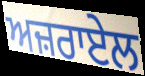
ਅਜ਼ਰਾਏਲ